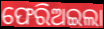
ଫେରିଅଇଲା